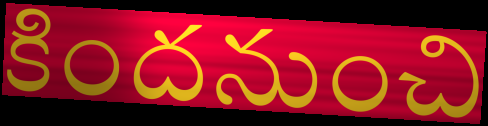
కిందనుంచి